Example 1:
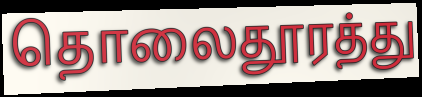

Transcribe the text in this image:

தொலைதூரத்து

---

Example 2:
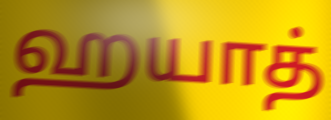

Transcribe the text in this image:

ஹயாத்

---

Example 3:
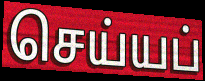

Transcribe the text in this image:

செய்யப்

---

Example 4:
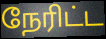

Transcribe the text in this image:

நேரிட்ட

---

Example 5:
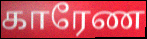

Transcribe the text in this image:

காரேண